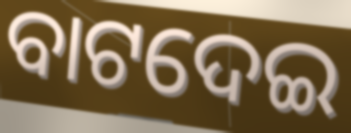
ବାଟଦେଇ